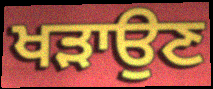
ਖੜਾਉਣ